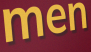
men